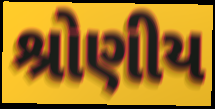
શ્રોણીય